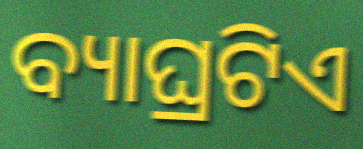
ବ୍ୟାଘ୍ରଟିଏ